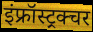
इंफ्रॉस्ट्रक्चर